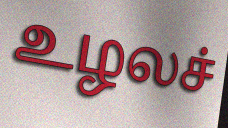
உழலச்